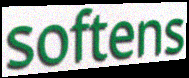
softens